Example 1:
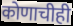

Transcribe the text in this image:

कोणाचीही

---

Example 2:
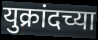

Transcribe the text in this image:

युक्रांदच्या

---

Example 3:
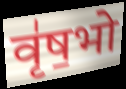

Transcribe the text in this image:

वृ॑ष॒भो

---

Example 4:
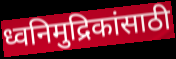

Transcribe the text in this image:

ध्वनिमुद्रिकांसाठी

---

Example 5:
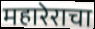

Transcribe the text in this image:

महारेराचा